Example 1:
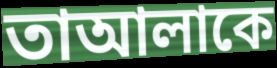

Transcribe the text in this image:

তাআলাকে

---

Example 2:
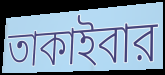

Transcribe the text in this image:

তাকাইবার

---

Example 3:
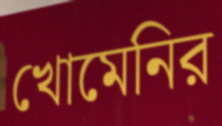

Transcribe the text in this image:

খোমেনির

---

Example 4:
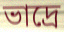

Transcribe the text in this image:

ভাদ্রে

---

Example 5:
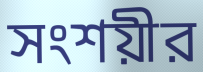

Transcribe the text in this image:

সংশয়ীর